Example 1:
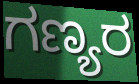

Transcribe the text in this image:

ಗಣ್ಯರ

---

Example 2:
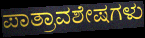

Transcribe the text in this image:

ಪಾತ್ರಾವಶೇಷಗಳು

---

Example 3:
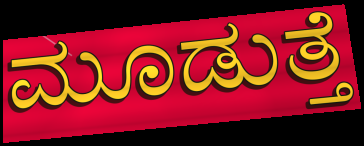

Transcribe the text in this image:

ಮೂಡುತ್ತೆ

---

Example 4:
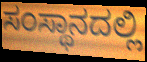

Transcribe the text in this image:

ಸಂಸ್ಥಾನದಲ್ಲಿ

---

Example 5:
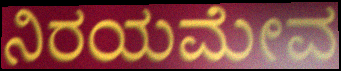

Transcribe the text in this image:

ನಿರಯಮೇವ